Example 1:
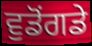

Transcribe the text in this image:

ਵੁਡੋਂਗਡੇ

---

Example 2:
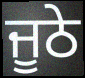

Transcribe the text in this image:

ਜੂਠੇ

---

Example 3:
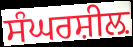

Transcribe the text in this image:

ਸੰਘਰਸ਼ੀਲ਼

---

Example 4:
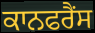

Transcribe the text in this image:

ਕਾਨਫਰੈਂਸ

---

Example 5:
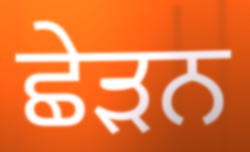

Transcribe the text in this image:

ਛੇੜਨ